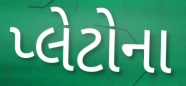
પ્લેટોના